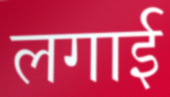
लगाई